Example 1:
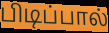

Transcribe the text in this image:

பிடிப்பால்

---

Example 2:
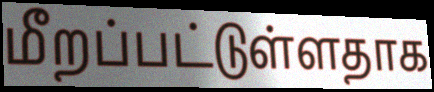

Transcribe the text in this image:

மீறப்பட்டுள்ளதாக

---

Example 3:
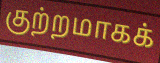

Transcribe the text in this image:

குற்றமாகக்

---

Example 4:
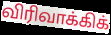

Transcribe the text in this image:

விரிவாக்கிக்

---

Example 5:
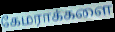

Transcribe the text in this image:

கேமராக்களை